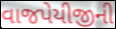
વાજપેયીજીની